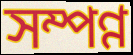
সম্পণ্ন